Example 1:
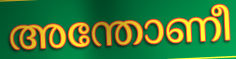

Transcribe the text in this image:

അന്തോണീ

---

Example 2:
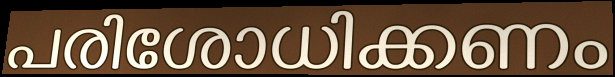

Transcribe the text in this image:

പരിശോധിക്കണം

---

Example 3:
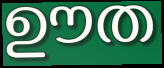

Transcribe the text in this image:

ഊത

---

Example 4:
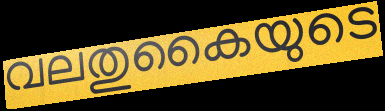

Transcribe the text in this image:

വലതുകൈയുടെ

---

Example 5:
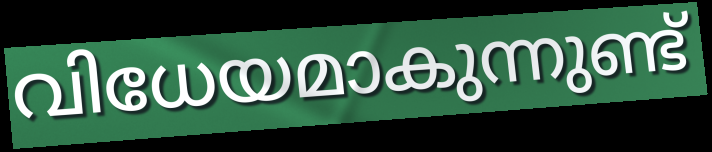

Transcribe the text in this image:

വിധേയമാകുന്നുണ്ട്